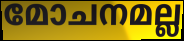
മോചനമല്ല